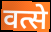
वत्से